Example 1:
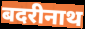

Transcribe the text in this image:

बदरीनाथ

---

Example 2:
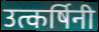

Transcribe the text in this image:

उत्कर्षिनी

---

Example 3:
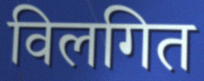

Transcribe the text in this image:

विलगित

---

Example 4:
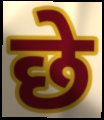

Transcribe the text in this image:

छे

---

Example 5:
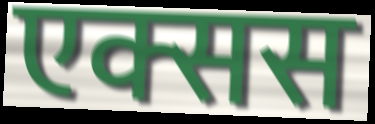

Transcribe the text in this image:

एक्सस